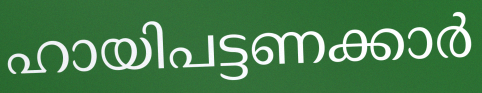
ഹായിപട്ടണക്കാർ